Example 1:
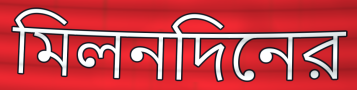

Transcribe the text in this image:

মিলনদিনের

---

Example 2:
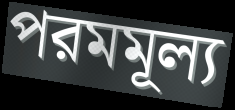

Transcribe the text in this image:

পরমমূল্য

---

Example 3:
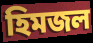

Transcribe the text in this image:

হিমজল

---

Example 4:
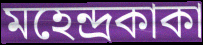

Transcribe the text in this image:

মহেন্দ্রকাকা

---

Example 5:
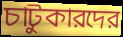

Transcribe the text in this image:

চাটুকারদের